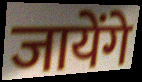
जायेंगे